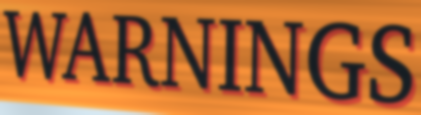
WARNINGS